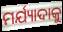
ମର୍ଯ୍ୟାଦାକୁ